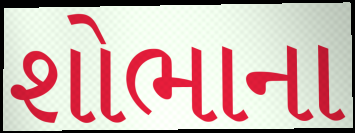
શોભાના